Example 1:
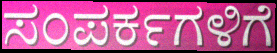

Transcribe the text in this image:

ಸಂಪರ್ಕಗಳಿಗೆ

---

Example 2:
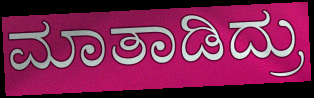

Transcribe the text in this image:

ಮಾತಾಡಿದ್ರು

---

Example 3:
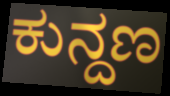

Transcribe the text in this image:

ಕುನ್ದಣ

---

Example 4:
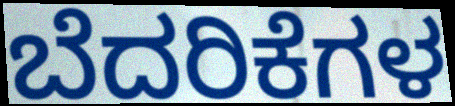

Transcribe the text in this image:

ಬೆದರಿಕೆಗಳ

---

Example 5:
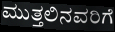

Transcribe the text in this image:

ಮುತ್ತಲಿನವರಿಗೆ